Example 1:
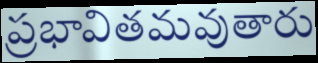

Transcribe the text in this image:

ప్రభావితమవుతారు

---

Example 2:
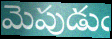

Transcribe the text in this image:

మెపుడుఁ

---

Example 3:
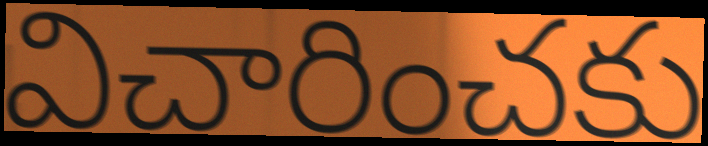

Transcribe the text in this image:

విచారించకు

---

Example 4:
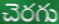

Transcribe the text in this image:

చెరగు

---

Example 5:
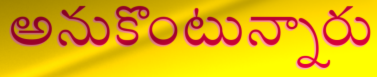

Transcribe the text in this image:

అనుకొంటున్నారు